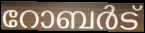
റോബർട്